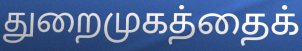
துறைமுகத்தைக்